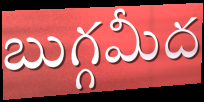
బుగ్గమీద